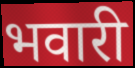
भवारी